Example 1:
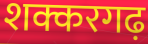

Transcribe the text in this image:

शक्करगढ़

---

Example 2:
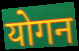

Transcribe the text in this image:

योगन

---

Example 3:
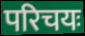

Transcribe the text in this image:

परिचयः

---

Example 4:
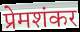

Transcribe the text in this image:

प्रेमशंकर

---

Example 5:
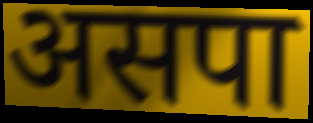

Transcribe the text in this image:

असपा